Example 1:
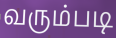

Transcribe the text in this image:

வரும்படி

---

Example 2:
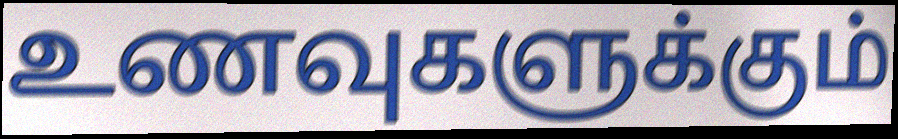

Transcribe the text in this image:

உணவுகளுக்கும்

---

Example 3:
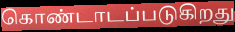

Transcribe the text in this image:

கொண்டாடப்படுகிறது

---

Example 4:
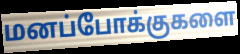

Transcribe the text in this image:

மனப்போக்குகளை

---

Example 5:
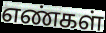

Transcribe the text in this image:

எண்கள்